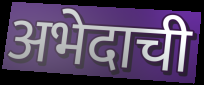
अभेदाची